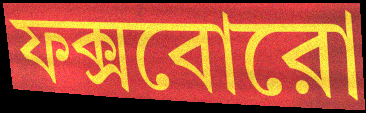
ফক্সবোরো